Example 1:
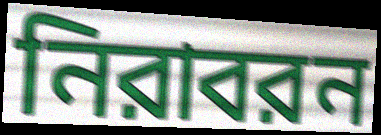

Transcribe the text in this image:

নিরাবরন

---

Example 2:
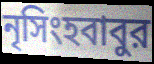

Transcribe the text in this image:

নৃসিংহবাবুর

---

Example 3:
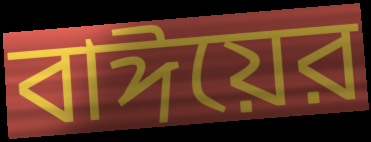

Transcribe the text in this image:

বাঈয়ের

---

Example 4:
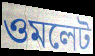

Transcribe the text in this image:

ওমলেট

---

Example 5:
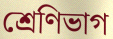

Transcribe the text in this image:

শ্রেণিভাগ